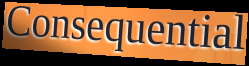
Consequential